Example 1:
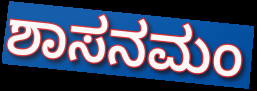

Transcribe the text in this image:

ಶಾಸನಮಂ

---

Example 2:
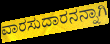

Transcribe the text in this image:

ವಾರಸುದಾರನನ್ನಾಗಿ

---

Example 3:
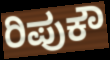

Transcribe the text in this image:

ರಿಪುಕೌ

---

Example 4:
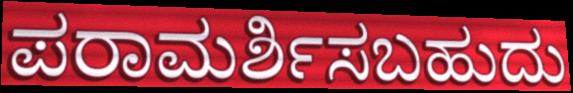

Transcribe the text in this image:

ಪರಾಮರ್ಶಿಸಬಹುದು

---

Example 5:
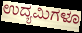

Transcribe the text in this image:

ಉದ್ಯಮಿಗಳೂ